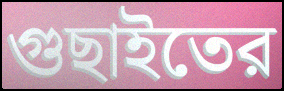
গুছাইতের